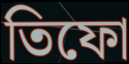
তিফো